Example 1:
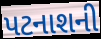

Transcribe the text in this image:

પટનાશની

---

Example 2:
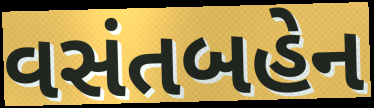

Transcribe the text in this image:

વસંતબહેન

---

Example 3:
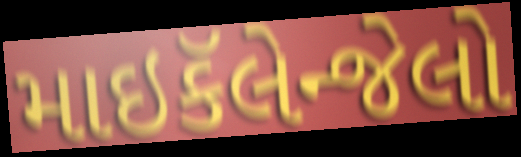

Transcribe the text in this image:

માઇકૅલેન્જેલો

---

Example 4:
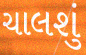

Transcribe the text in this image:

ચાલશું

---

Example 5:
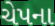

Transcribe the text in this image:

ચેપના